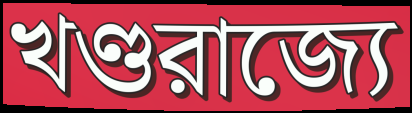
খণ্ডরাজ্যে